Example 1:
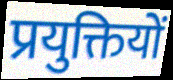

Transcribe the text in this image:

प्रयुक्तियों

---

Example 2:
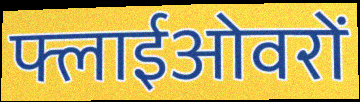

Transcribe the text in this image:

फ्लाईओवरों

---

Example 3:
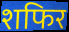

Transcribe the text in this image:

शफिर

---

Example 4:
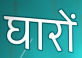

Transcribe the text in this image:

घारों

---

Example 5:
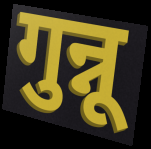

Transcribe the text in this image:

गुन्नू